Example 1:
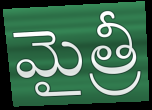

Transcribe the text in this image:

మైత్రీ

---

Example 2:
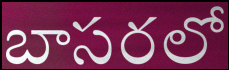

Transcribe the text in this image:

బాసరలో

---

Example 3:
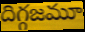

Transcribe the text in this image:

దిగ్గజమూ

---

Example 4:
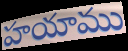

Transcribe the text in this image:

హయాము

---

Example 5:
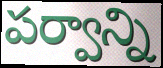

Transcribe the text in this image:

పర్వాన్ని